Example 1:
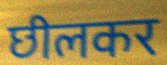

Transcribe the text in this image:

छीलकर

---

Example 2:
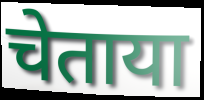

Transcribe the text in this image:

चेताया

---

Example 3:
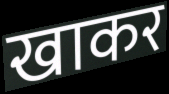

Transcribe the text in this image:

खाकर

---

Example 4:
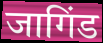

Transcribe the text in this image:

जागिंड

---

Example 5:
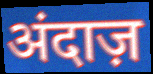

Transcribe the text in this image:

अंदाज़